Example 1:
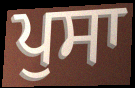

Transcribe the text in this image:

ਪੁਸਾ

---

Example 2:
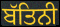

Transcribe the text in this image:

ਬੱਤਿਨੀ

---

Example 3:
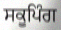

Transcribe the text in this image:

ਸਕੂਪਿੰਗ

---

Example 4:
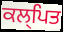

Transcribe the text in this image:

ਕਲ੍ਪਿਤ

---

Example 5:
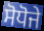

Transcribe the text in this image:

ਸੋਧੋਜੇ